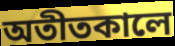
অতীতকালে